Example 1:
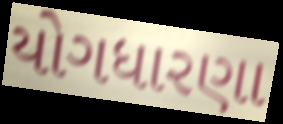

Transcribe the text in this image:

યોગધારણા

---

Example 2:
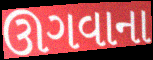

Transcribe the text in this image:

ઊગવાના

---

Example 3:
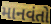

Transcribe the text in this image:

માનવંતો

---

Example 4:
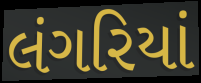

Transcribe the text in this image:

લંગરિયાં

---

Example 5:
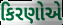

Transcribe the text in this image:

કિરણોએ